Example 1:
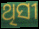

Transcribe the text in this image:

ଥିସୀ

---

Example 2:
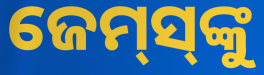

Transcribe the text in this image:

ଜେମ୍‌ସ୍‌ଙ୍କୁ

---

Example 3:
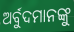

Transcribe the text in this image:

ଅର୍ବୁଦମାନଙ୍କୁ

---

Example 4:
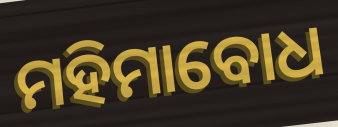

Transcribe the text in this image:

ମହିମାବୋଧ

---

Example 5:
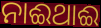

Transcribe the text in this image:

ନାଈଥାଈ